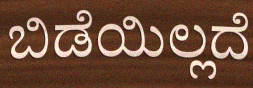
ಬಿಡೆಯಿಲ್ಲದೆ